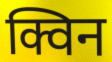
क्विन